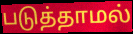
படுத்தாமல்